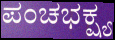
ಪಂಚಭಕ್ಷ್ಯ